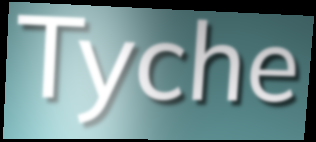
Tyche